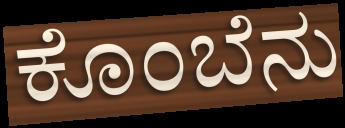
ಕೊಂಬೆನು